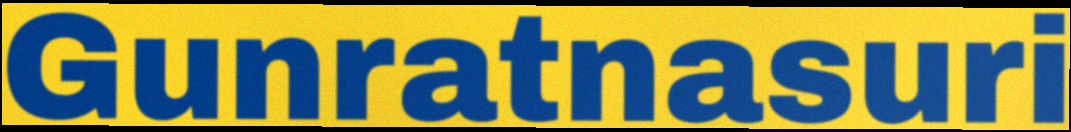
Gunratnasuri